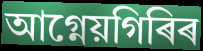
আগ্নেয়গিৰিৰ